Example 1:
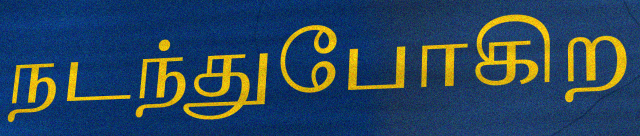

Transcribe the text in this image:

நடந்துபோகிற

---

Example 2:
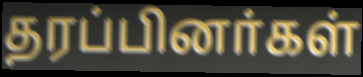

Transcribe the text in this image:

தரப்பினர்கள்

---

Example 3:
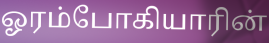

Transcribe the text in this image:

ஓரம்போகியாரின்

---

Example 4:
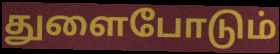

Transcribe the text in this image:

துளைபோடும்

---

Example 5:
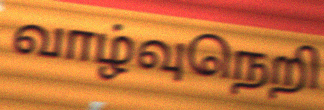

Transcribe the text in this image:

வாழ்வுநெறி